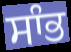
ਸਾੰਭ